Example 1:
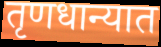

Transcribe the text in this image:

तृणधान्यात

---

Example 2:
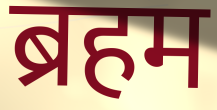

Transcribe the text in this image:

ब्रहम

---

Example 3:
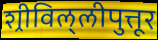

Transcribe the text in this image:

श्रीविल्लीपुत्तूर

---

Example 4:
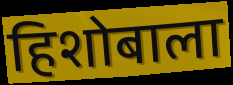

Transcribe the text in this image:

हिशोबाला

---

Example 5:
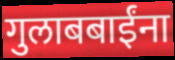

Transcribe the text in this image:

गुलाबबाईंना